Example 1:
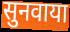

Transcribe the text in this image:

सुनवाया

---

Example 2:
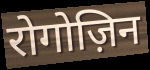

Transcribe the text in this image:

रोगोज़िन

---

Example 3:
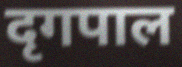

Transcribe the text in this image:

दृगपाल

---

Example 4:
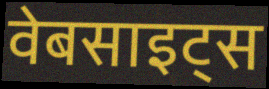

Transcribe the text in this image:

वेबसाइट्स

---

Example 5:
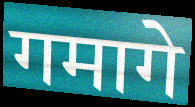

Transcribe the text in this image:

गमागे